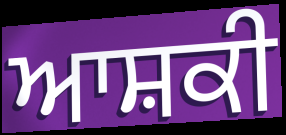
ਆਸ਼ਕੀ